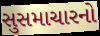
સુસમાચારનો